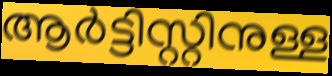
ആർട്ടിസ്റ്റിനുള്ള